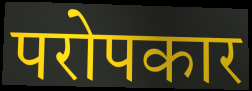
परोपकार